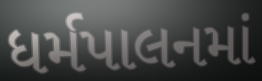
ધર્મપાલનમાં